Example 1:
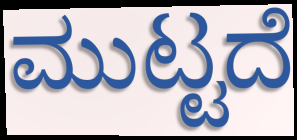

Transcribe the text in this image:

ಮುಟ್ಟದೆ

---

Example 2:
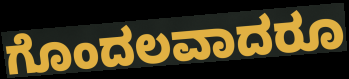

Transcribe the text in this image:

ಗೊಂದಲವಾದರೂ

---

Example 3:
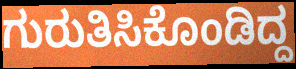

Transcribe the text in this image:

ಗುರುತಿಸಿಕೊಂಡಿದ್ದ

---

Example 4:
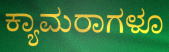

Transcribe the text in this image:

ಕ್ಯಾಮರಾಗಳೂ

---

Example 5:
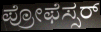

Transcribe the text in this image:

ಪ್ರೋಫೆಸ್ಸರ್